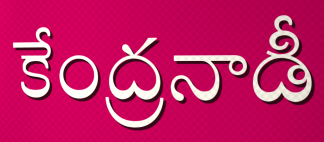
కేంద్రనాడీ